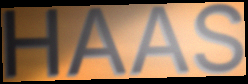
HAAS